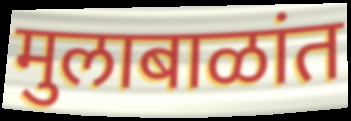
मुलाबाळांत